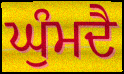
ਘੁੰਮਦੈ